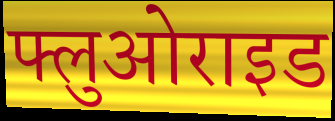
फ्लुओराइड